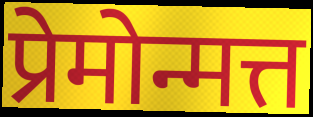
प्रेमोन्मत्त